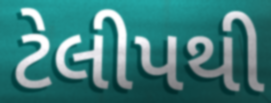
ટેલીપથી